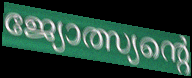
ജ്യോത്സ്യന്റെ